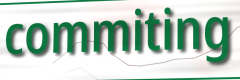
commiting